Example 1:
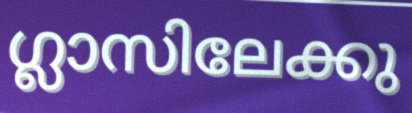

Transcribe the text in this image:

ഗ്ലാസിലേക്കു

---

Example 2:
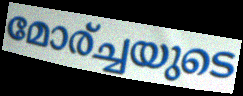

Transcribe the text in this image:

മോര്ച്ചയുടെ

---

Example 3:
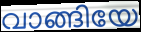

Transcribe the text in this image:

വാങ്ങിയേ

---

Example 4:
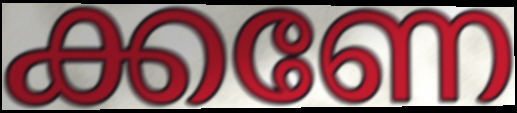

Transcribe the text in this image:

ക്കണേ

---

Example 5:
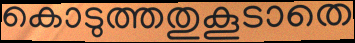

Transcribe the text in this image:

കൊടുത്തതുകൂടാതെ